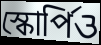
স্কোর্পিও